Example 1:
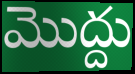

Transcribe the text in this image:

మొద్దు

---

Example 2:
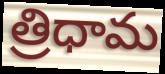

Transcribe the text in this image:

త్రిధామ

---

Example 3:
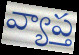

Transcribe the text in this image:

వ్యాప్త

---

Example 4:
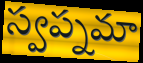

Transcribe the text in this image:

స్వప్నమా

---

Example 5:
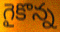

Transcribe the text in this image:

గైకొన్న